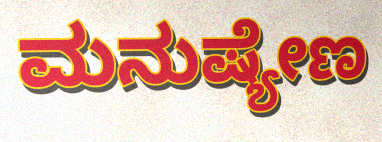
ಮನುಷ್ಯೇಣ